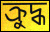
ক্রুদ্ধ